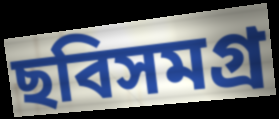
ছবিসমগ্র